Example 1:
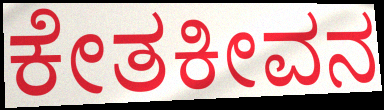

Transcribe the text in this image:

ಕೇತಕೀವನ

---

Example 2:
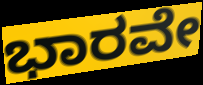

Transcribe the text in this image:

ಭಾರವೇ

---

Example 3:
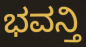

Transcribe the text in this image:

ಭವನ್ತಿ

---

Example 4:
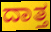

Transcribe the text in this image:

ದಾತ್ತ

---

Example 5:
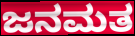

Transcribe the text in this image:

ಜನಮತ